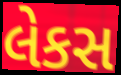
લેકસ